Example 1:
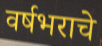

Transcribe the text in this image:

वर्षभराचे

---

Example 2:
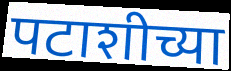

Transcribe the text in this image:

पटाशीच्या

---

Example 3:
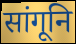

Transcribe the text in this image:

सांगूनि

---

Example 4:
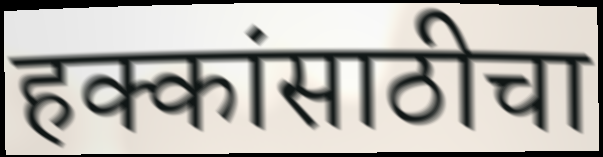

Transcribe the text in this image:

हक्कांसाठीचा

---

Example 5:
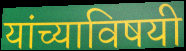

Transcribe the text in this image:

यांच्याविषयी